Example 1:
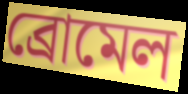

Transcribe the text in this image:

ব্রোমেল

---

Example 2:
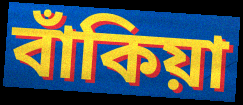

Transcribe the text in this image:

বাঁকিয়া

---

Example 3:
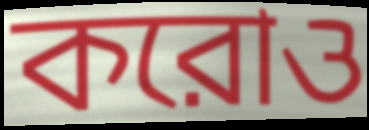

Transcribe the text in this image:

করোও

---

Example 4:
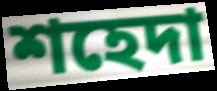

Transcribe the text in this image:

শহেদা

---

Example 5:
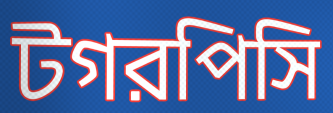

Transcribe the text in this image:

টগরপিসি